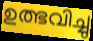
ഉത്ഭവിച്ചു